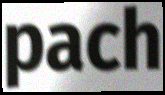
pach